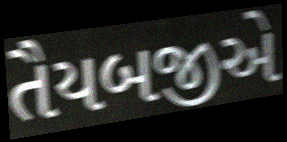
તૈયબજીએ